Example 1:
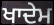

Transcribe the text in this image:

ਖਾਦੇਮ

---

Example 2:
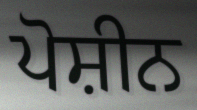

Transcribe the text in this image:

ਪੋਸ਼ੀਨ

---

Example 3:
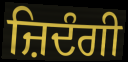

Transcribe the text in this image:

ਜ਼ਿਦੰਗੀ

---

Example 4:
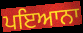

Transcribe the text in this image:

ਪਇਆਨਾ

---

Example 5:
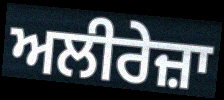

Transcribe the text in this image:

ਅਲੀਰੇਜ਼ਾ